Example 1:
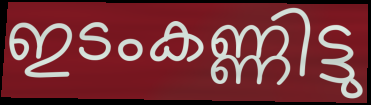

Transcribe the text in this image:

ഇടംകണ്ണിട്ടു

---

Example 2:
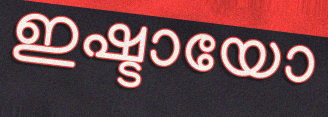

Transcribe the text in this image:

ഇഷ്ടായോ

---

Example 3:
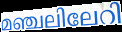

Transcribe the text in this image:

മഞ്ചലിലേറി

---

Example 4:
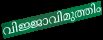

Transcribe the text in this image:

വിജ്ജാവിമുത്തിം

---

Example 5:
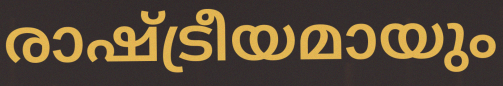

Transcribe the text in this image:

രാഷ്ട്രീയമായും